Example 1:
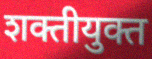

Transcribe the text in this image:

शक्तीयुक्त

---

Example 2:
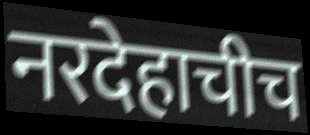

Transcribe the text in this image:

नरदेहाचीच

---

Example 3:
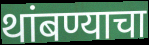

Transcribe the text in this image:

थांबण्याचा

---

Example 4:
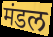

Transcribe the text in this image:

मंडल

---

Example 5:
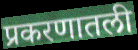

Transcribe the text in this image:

प्रकरणातली